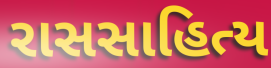
રાસસાહિત્ય